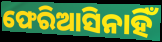
ଫେରିଆସିନାହିଁ